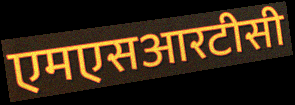
एमएसआरटीसी